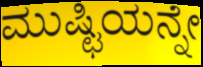
ಮುಷ್ಟಿಯನ್ನೇ